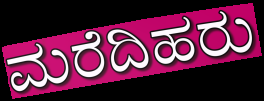
ಮರೆದಿಹರು